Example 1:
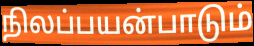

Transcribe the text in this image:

நிலப்பயன்பாடும்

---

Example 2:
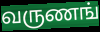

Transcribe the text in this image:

வருணங்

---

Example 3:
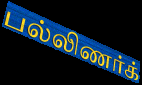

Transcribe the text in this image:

பல்லிணர்க்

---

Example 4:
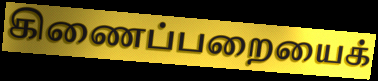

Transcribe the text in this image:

கிணைப்பறையைக்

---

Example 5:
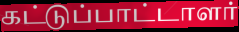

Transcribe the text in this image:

கட்டுப்பாட்டாளர்